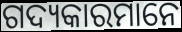
ଗଦ୍ୟକାରମାନେ